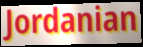
Jordanian